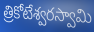
త్రికోటేశ్వరస్వామి